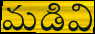
మడివి